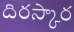
దిరస్కార